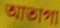
আতাগা